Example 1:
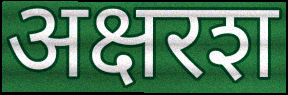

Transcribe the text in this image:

अक्षरश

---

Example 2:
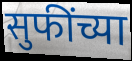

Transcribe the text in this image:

सुफींच्या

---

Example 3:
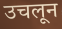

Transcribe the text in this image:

उचलून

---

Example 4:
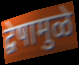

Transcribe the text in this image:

द्वेषामुळे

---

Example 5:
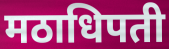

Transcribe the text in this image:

मठाधिपती